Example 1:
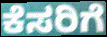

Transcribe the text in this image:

ಕೆಸರಿಗೆ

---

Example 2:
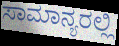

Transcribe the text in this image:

ಸಾಮಾನ್ಯರಲ್ಲಿ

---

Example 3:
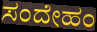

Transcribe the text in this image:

ಸಂದೇಹಂ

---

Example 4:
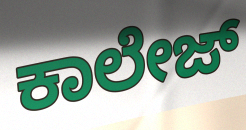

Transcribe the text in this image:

ಕಾಲೇಜ್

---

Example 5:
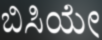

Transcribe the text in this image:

ಬಿಸಿಯೇ